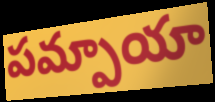
పమ్పాయా